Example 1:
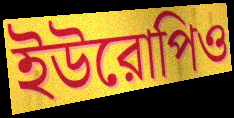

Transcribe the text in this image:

ইউরোপিও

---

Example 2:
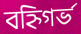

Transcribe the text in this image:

বহ্নিগর্ভ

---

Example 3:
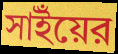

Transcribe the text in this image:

সাইঁয়ের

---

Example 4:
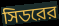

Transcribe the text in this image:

সিডরের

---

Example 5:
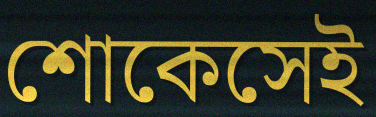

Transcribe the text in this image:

শোকেসেই